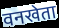
वनखेता